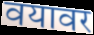
वयावर